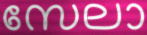
സേലാ